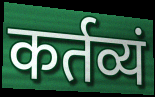
कर्तव्यं